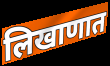
लिखाणात